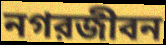
নগরজীবন